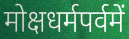
मोक्षधर्मपर्वमें